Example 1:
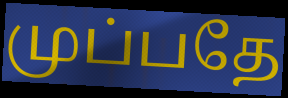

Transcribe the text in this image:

முப்பதே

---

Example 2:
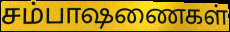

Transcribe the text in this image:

சம்பாஷணைகள்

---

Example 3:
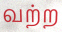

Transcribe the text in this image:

வற்ற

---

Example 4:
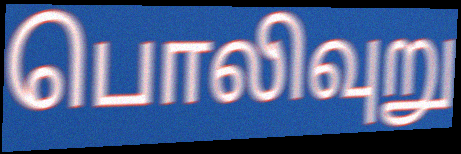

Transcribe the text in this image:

பொலிவுறு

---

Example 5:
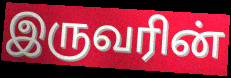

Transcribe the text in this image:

இருவரின்